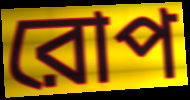
রোপ